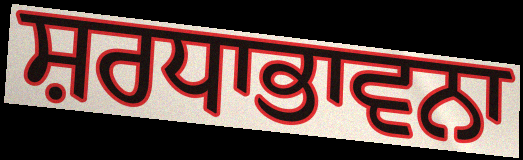
ਸ਼ਰਧਾਭਾਵਨਾ